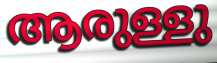
ആരുള്ളു